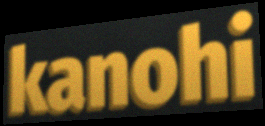
kanohi